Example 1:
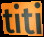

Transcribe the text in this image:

titi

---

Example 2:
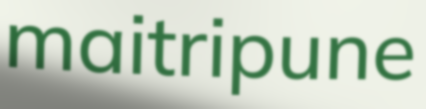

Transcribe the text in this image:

maitripune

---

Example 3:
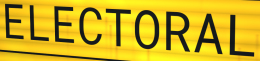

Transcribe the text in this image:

ELECTORAL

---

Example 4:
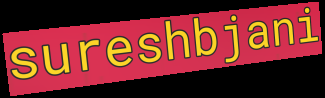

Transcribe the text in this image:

sureshbjani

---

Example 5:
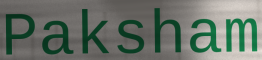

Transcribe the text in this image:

Paksham